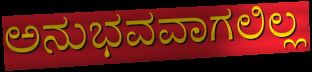
ಅನುಭವವಾಗಲಿಲ್ಲ